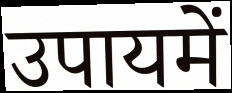
उपायमें